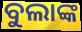
ବୁଲାଙ୍କ